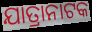
ଯାତ୍ରାନାଟକ